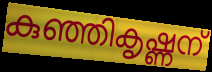
കുഞ്ഞികൃഷ്ണന്